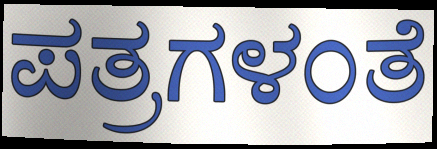
ಪತ್ರಗಳಂತೆ